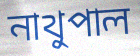
নাথুপাল